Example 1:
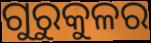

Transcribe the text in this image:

ଗୁରୁକୁଳର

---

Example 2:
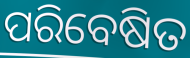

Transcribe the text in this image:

ପରିବେଷିତ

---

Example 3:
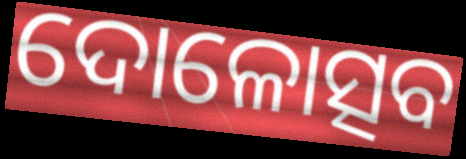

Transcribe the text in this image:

ଦୋଳୋତ୍ସବ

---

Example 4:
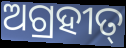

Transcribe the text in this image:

ଅଗ୍ରହୀତ୍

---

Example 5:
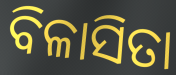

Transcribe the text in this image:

ବିଳାସିତା